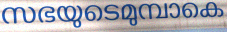
സഭയുടെമുമ്പാകെ